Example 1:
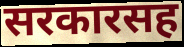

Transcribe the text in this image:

सरकारसह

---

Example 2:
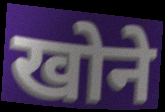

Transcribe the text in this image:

खोने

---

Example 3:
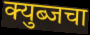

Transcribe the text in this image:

क्युब्जचा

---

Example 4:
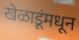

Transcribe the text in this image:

खेळाडूंमधून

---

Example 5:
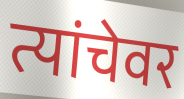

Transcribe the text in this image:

त्यांचेवर